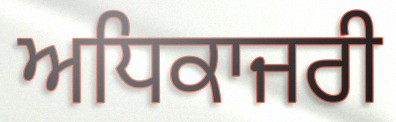
ਅਧਿਕਾਜਰੀ